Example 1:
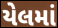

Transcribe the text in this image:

યેલમાં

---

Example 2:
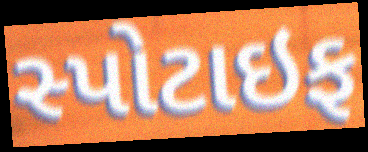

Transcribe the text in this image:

સ્પોટાઇફ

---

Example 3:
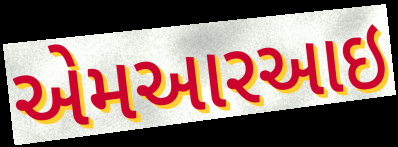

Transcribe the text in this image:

એમઆરઆઇ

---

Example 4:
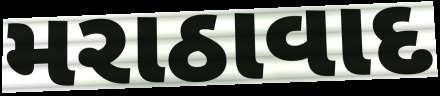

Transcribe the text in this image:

મરાઠાવાદ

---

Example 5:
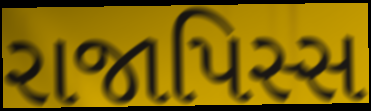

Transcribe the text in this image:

રાજાપિસ્સ